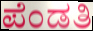
ಪೆಂಡತಿ